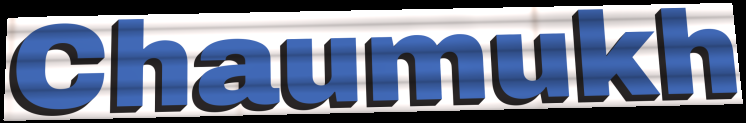
Chaumukh